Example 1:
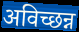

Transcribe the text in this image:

अविच्छन्न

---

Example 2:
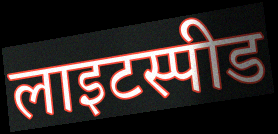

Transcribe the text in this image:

लाइटस्पीड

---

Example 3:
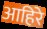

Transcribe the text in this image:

आहिरे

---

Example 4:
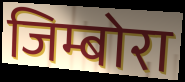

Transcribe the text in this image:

जिम्बोरा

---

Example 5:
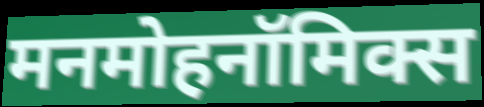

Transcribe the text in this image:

मनमोहनॉमिक्स